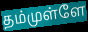
தம்முள்ளே